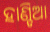
ହାଣ୍ଡିଆ